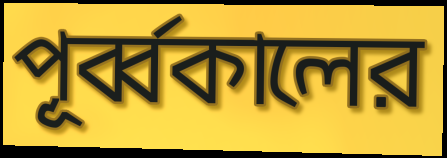
পূর্ব্বকালের